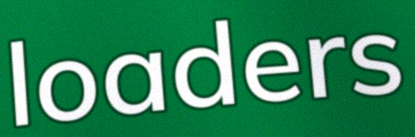
loaders